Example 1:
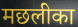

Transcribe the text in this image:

मछलीका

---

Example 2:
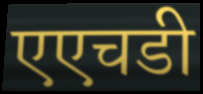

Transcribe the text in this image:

एएचडी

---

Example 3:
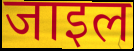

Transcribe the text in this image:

जाइल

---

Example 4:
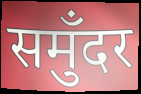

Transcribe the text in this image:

समुँदर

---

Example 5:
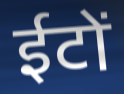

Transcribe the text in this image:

ईटों